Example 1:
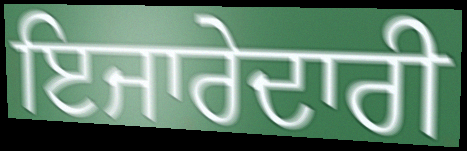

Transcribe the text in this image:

ਇਜਾਰੇਦਾਰੀ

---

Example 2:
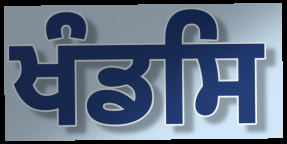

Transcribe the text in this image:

ਖੰਡਸਿ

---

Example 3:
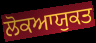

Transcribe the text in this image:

ਲੋਕਆਯੁਕਤ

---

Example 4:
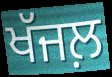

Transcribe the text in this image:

ਖੱਜਲ਼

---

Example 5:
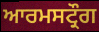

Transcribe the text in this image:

ਆਰਮਸਟ੍ਰੌਗ